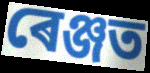
ৰেঞ্জত